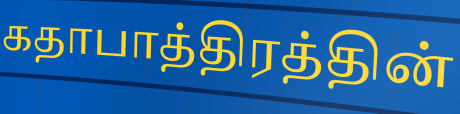
கதாபாத்திரத்தின்